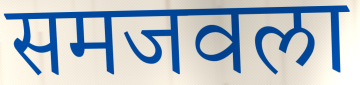
समजवला